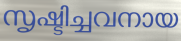
സൃഷ്ടിച്ചവനായ